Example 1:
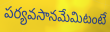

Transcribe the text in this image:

పర్యవసానమేమిటంటే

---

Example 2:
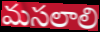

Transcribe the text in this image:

మసలాలి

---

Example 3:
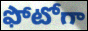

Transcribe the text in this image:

ఫోటోగా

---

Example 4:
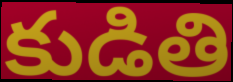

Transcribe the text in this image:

కుడితి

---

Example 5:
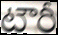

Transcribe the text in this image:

టౌరీ